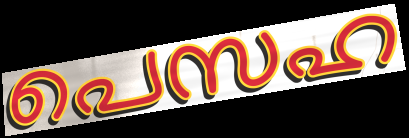
പെസഹ